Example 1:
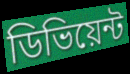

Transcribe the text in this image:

ডিভিয়েন্ট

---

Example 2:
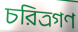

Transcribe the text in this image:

চরিত্রগণ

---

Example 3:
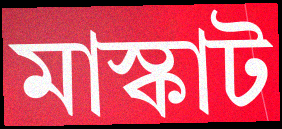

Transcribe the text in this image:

মাস্কাট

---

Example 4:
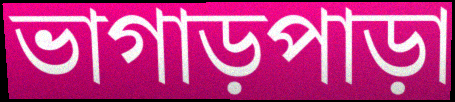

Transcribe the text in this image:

ভাগাড়পাড়া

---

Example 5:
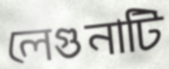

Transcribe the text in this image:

লেগুনাটি